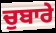
ਚੁਬਾਰੇ